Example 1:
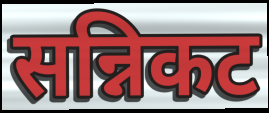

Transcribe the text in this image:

सन्निकट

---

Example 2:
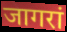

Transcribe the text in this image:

जागरां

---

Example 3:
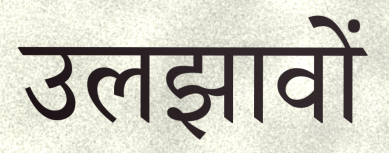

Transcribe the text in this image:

उलझावों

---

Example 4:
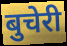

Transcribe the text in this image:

बुचेरी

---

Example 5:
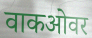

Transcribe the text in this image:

वाकओवर